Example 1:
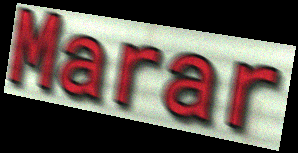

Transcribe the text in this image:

Marar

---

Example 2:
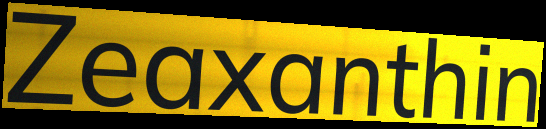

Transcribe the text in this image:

Zeaxanthin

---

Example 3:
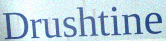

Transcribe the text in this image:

Drushtine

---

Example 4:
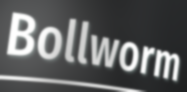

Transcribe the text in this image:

Bollworm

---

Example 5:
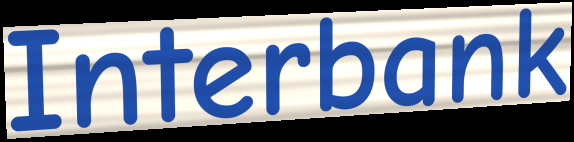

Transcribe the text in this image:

Interbank